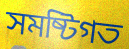
সমষ্টিগত